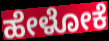
ಹೇಳೋಕೆ